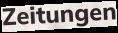
Zeitungen